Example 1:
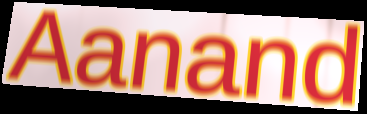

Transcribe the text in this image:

Aanand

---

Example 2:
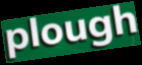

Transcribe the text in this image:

plough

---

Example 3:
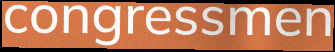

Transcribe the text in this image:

congressmen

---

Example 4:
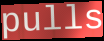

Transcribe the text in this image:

pulls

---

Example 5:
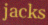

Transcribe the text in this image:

jacks